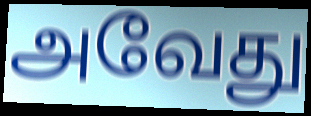
அவேது